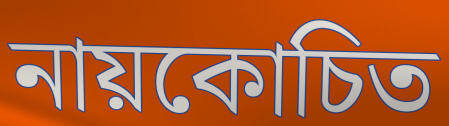
নায়কোচিত